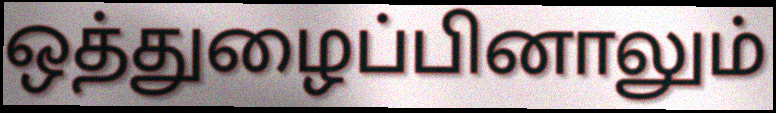
ஒத்துழைப்பினாலும்